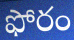
ఫోరం